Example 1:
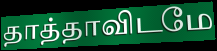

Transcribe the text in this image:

தாத்தாவிடமே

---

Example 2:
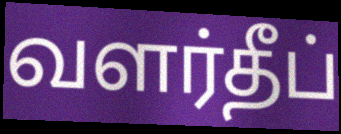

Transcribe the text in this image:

வளர்தீப்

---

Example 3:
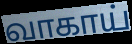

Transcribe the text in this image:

வாகாய்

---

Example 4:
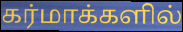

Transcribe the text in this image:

கர்மாக்களில்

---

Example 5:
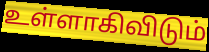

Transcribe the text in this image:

உள்ளாகிவிடும்